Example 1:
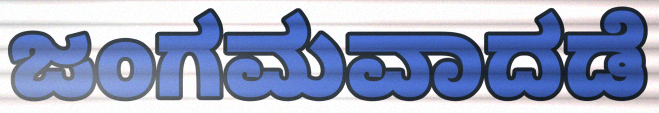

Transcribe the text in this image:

ಜಂಗಮವಾದಡೆ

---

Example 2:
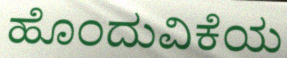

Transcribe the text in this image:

ಹೊಂದುವಿಕೆಯ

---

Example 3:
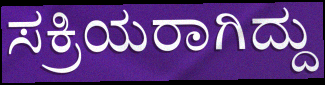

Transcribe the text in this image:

ಸಕ್ರಿಯರಾಗಿದ್ದು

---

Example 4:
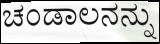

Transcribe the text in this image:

ಚಂಡಾಲನನ್ನು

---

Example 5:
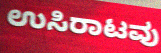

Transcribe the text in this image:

ಉಸಿರಾಟವು